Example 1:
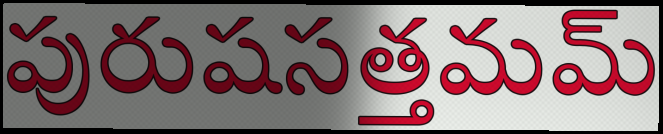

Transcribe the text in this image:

పురుషసత్తమమ్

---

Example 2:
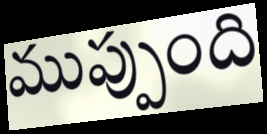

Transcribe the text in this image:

ముప్పుంది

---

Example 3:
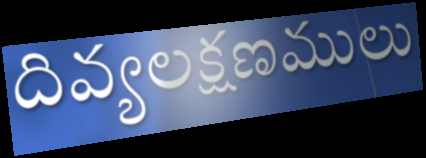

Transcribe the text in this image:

దివ్యలక్షణములు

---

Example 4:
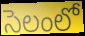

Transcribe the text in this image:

సెలంలో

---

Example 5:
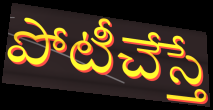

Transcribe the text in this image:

పోటీచేస్తే